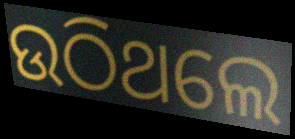
ଉଠିଥଲେ